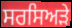
ਸਰਸਿਅੜੇ